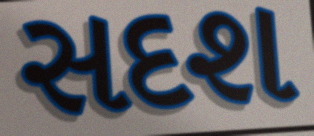
સદશ